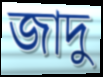
জাদু